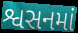
શ્વસનમાં